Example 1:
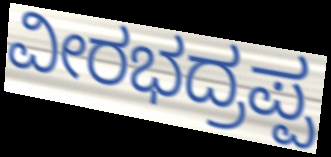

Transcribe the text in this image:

ವೀರಭದ್ರಪ್ಪ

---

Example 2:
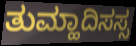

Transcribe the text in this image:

ತುಮ್ಹಾದಿಸಸ್ಸ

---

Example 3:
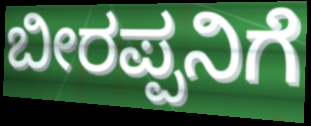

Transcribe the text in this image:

ಬೀರಪ್ಪನಿಗೆ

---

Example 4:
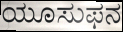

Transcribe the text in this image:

ಯೂಸುಫನ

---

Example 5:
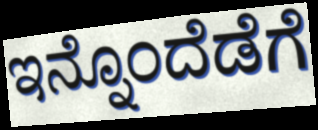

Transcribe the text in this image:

ಇನ್ನೊಂದೆಡೆಗೆ